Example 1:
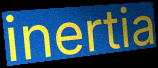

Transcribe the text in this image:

inertia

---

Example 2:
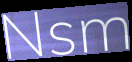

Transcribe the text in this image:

Nsm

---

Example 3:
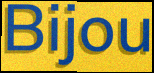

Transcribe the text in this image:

Bijou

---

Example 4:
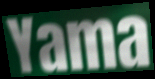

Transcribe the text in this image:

Yama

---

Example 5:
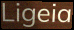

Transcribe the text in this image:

Ligeia